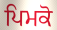
ਪਿਮਕੋ